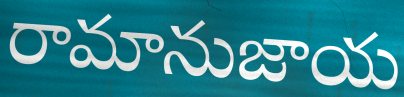
రామానుజాయ